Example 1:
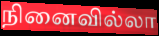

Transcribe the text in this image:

நினைவில்லா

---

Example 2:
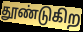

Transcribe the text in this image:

தூண்டுகிற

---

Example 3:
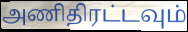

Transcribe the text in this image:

அணிதிரட்டவும்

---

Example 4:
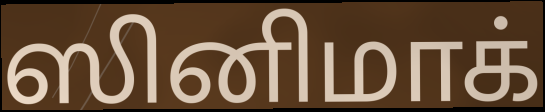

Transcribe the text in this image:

ஸினிமாக்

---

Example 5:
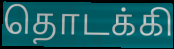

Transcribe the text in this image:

தொடக்கி